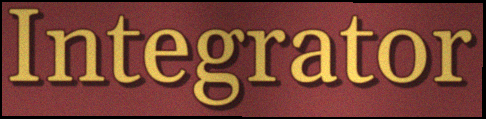
Integrator